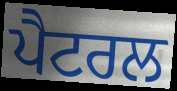
ਪੈਟਰਲ